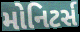
મોનિટર્સ